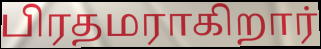
பிரதமராகிறார்